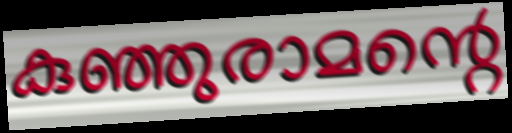
കുഞ്ഞുരാമന്റെ